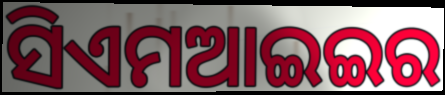
ସିଏମଆଇଇର